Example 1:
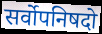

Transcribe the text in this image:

सर्वोपनिषदो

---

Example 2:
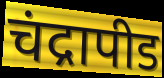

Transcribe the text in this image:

चंद्रापीड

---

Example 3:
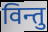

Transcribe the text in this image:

विन्तु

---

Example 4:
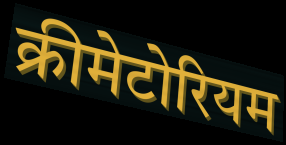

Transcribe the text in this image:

क्रीमेटोरियम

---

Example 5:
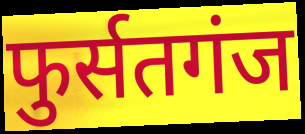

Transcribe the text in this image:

फुर्सतगंज